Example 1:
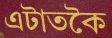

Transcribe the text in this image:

এটাতকৈ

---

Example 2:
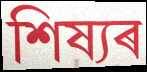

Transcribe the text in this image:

শিষ্যৰ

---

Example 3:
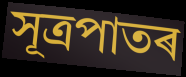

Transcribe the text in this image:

সূত্ৰপাতৰ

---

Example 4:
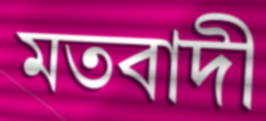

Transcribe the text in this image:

মতবাদী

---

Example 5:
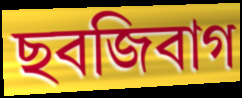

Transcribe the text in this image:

ছবজিবাগ